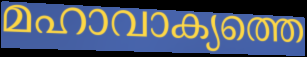
മഹാവാക്യത്തെ